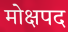
मोक्षपद